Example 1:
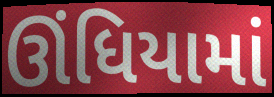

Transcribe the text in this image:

ઊંધિયામાં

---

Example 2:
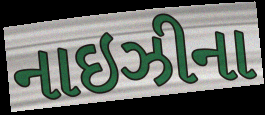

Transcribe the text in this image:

નાઇઝીના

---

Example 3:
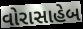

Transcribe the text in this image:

વોરાસાહેબ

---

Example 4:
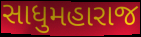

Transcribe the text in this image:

સાધુમહારાજ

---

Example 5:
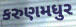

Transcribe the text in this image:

કરુણમધુર